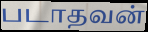
படாதவன்